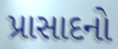
પ્રાસાદનો